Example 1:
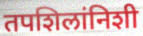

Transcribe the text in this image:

तपशिलांनिशी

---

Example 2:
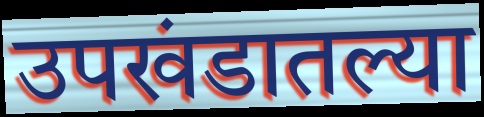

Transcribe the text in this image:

उपखंडातल्या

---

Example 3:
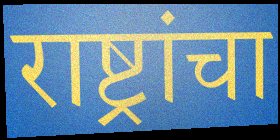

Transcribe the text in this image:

राष्ट्रांचा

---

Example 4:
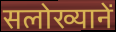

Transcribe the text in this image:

सलोख्यानें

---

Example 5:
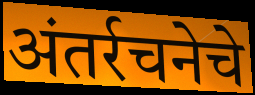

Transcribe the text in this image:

अंतर्रचनेचे